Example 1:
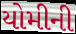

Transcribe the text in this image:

યોમીની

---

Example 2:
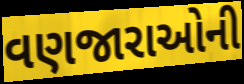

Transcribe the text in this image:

વણજારાઓની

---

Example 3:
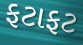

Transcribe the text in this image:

ફટાફટ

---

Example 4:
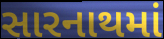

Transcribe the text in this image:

સારનાથમાં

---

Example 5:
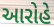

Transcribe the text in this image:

આરોહે